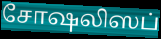
சோஷலிஸப்